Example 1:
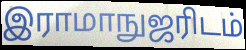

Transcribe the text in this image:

இராமாநுஜரிடம்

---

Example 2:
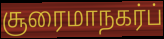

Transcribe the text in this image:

சூரைமாநகர்ப்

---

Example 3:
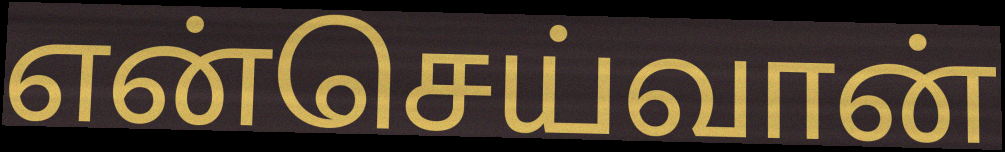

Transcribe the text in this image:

என்செய்வான்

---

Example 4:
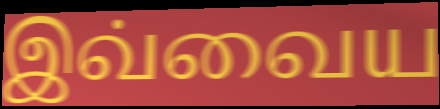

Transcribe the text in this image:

இவ்வைய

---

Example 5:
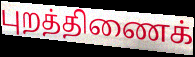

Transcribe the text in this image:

புறத்திணைக்